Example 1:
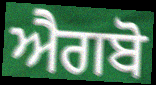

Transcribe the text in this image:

ਐਗਬੋ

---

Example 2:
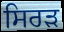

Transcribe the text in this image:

ਸਿਰੜ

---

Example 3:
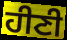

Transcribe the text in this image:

ਹੀਣੀ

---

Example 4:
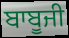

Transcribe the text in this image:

ਬਾਬੂਜੀ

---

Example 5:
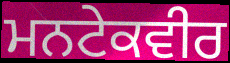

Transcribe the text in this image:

ਮਨਟੇਕਵੀਰ